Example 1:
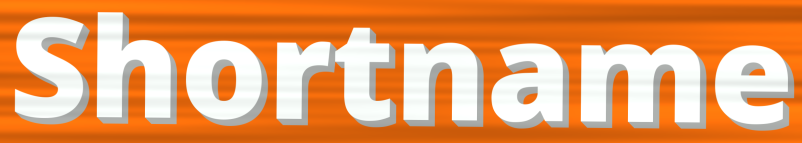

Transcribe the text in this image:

Shortname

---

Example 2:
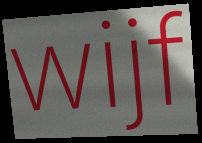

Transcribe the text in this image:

wijf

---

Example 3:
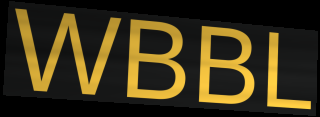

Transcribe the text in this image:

WBBL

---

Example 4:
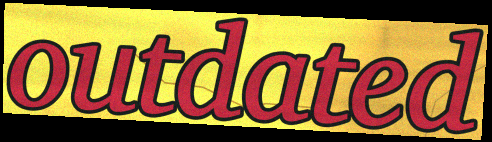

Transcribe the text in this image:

outdated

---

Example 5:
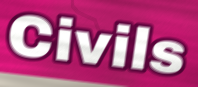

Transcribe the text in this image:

Civils